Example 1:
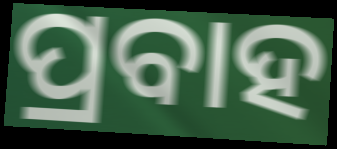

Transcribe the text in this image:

ପ୍ରବାହ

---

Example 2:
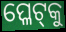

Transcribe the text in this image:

ପ୍ଳେଟ୍‌କୁ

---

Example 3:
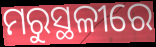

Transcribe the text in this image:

ମରୁସ୍ଥଳୀରେ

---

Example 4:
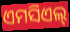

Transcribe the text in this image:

ଏମସିଏଲ୍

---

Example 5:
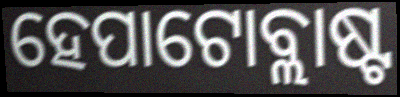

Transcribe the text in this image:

ହେପାଟୋବ୍ଲାଷ୍ଟ